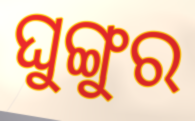
ଘୁଙ୍ଗୁର